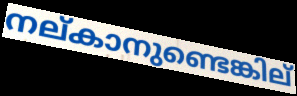
നല്കാനുണ്ടെങ്കില്